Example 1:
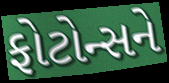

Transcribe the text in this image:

ફોટોન્સને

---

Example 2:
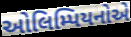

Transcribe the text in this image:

ઓલિમ્પિયનોએ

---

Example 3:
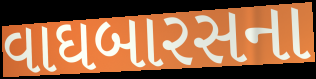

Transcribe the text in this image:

વાઘબારસના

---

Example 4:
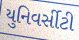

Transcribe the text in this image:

યુનિવર્સીટી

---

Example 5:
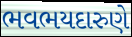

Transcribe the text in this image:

ભવભયદારુણે